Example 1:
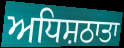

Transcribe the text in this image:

ਅਧਿਸ਼ਠਾਤਾ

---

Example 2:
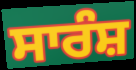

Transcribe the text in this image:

ਸਾਰੰਸ਼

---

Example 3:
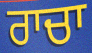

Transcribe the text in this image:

ਰਾਚਾ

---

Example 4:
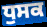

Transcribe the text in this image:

ਧੁਸਕ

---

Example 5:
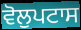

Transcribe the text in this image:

ਵੋਲੁਪਟਾਸ